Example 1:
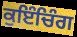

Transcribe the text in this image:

ਕੁਇੰਚਿੰਗ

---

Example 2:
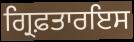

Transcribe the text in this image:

ਗ੍ਰਿਫ਼ਤਾਰਇਸ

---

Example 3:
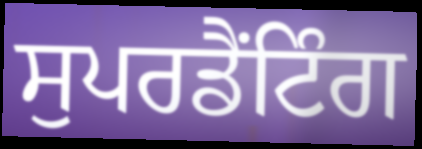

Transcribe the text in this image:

ਸੁਪਰਡੈਂਟਿੰਗ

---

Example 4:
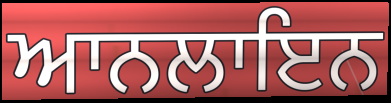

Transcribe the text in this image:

ਆਨਲਾਇਨ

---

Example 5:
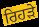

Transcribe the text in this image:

ਰਿਹੜੇ